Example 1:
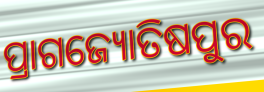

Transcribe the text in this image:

ପ୍ରାଗଜ୍ୟୋତିଷପୁର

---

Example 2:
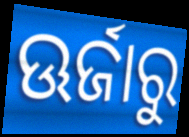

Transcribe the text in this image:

ଊର୍ଜାରୁ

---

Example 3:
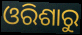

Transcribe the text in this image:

ଓରିଶାରୁ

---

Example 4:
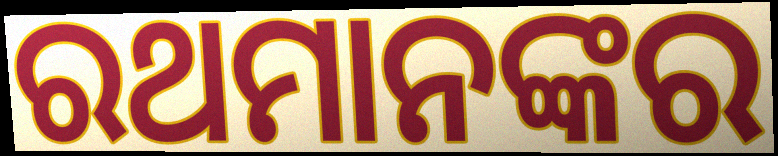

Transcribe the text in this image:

ରଥମାନଙ୍କର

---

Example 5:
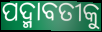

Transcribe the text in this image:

ପଦ୍ମାବତୀକୁ